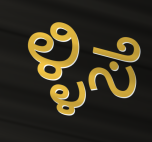
ಳ್ಳಿಸೆ